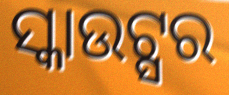
ସ୍କାଉଟ୍ସର